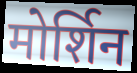
मोर्शिन